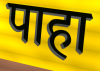
पाहा